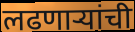
लढणाऱ्यांची